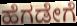
ಹೆಗಡೇಗೆ